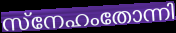
സ്‌നേഹംതോന്നി